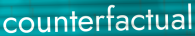
counterfactual